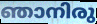
ഞാനിരു